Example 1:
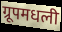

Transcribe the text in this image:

ग्रूपमधली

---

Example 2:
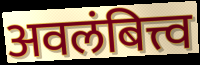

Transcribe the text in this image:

अवलंबित्त्व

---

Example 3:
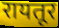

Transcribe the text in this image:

रायतूर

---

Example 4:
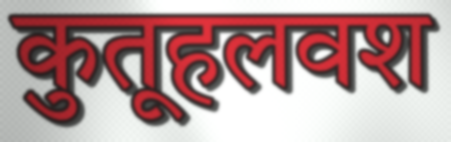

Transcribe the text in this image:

कुतूहलवश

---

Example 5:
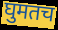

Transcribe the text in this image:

घुमतच